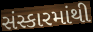
સંસ્કારમાંથી